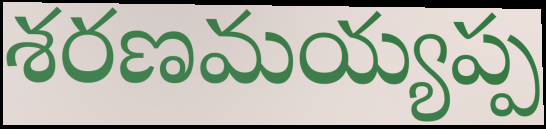
శరణమయ్యప్ప